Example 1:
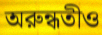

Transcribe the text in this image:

অরুন্ধতীও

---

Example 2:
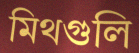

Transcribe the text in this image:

মিথগুলি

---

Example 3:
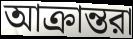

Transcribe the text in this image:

আক্রান্তরা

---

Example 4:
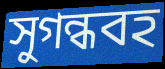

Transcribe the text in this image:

সুগন্ধবহ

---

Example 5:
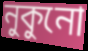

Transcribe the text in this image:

নুকুনো